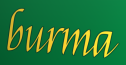
burma